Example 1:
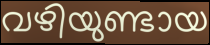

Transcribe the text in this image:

വഴിയുണ്ടായ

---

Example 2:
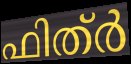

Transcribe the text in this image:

ഫിത്ർ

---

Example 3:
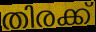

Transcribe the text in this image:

തിരക്ക്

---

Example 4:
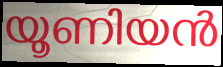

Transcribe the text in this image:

യൂണിയൻ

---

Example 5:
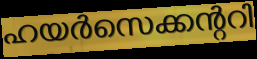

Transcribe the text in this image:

ഹയർസെക്കന്ററി